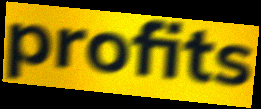
profits